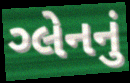
ગ્લેનનું